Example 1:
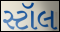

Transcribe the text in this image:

સ્ટૉલ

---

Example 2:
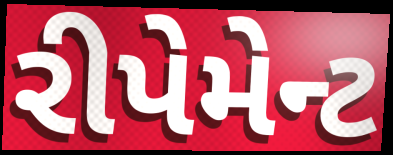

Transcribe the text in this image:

રીપેમેન્ટ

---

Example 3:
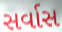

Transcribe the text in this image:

સર્વાસ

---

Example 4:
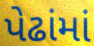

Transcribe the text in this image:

પેઢાંમાં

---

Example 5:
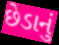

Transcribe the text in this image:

છેડાનું